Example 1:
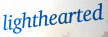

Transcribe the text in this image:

lighthearted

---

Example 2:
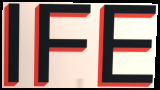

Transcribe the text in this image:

IFE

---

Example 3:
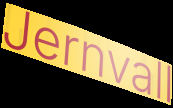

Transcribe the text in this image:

Jernvall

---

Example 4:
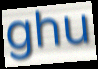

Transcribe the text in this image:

ghu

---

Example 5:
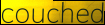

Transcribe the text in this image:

couched